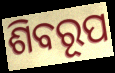
ଶିବରୂପ